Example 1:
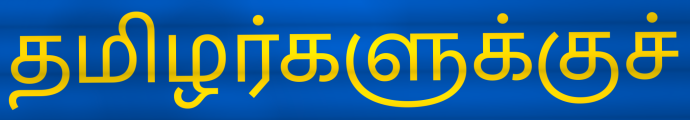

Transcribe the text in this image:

தமிழர்களுக்குச்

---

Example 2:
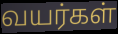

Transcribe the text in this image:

வயர்கள்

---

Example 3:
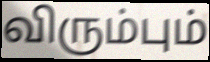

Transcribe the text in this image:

விரும்பும்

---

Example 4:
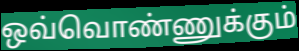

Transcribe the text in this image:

ஒவ்வொண்ணுக்கும்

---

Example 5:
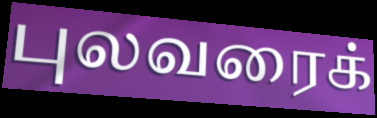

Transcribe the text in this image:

புலவரைக்